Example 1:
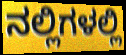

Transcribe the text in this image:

ನಲ್ಲಿಗಳಲ್ಲಿ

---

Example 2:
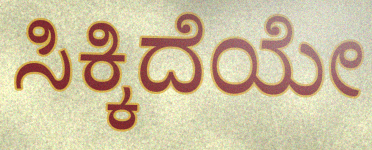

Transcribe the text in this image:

ಸಿಕ್ಕಿದೆಯೇ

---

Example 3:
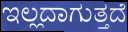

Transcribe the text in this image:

ಇಲ್ಲದಾಗುತ್ತದೆ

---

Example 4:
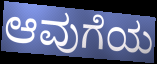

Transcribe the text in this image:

ಆವುಗೆಯ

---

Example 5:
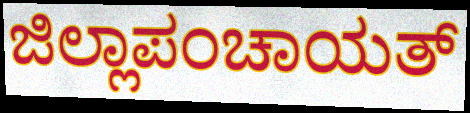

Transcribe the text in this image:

ಜಿಲ್ಲಾಪಂಚಾಯತ್